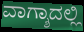
ವಾಗ್ಶಾದಲ್ಲಿ